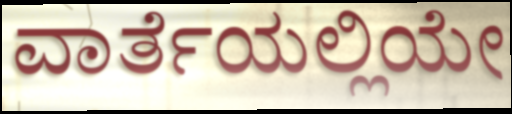
ವಾರ್ತೆಯಲ್ಲಿಯೇ